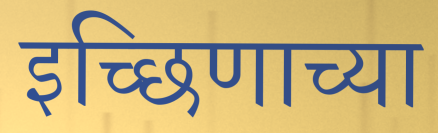
इच्छिणाच्या